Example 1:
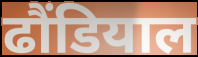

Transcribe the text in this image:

ढौंडियाल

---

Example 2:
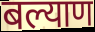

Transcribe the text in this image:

बल्याण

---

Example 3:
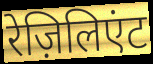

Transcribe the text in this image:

रेज़िलिएंट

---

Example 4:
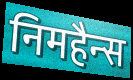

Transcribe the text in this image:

निमहैन्स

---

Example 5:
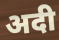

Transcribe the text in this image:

अदी